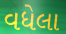
વધેલા